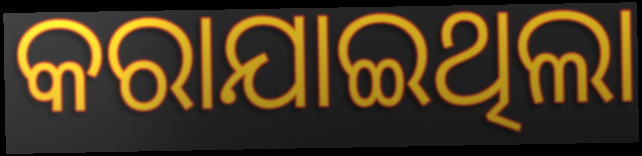
କରାଯାଇଥିଲା